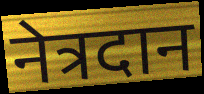
नेत्रदान